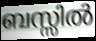
ബസ്സിൽ